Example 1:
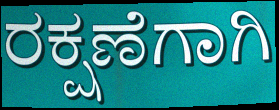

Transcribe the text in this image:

ರಕ್ಷಣೆಗಾಗಿ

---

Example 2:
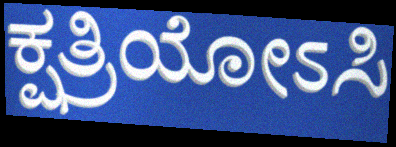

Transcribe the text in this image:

ಕ್ಷತ್ರಿಯೋಽಸಿ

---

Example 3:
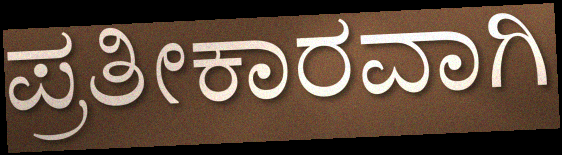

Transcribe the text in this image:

ಪ್ರತೀಕಾರವಾಗಿ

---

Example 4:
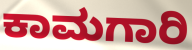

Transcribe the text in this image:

ಕಾಮಗಾರಿ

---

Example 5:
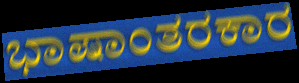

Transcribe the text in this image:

ಭಾಷಾಂತರಕಾರ